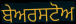
ਬੇਅਰਸਟੋਅ